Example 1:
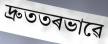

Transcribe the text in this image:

দ্ৰুততৰভাৱে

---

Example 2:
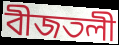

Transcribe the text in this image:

বীজতলী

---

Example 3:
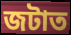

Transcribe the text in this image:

জটাত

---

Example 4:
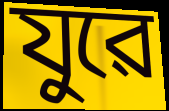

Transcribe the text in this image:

যুৱে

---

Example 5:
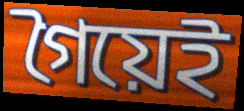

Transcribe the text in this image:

গৈয়েই